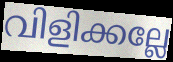
വിളിക്കല്ലേ